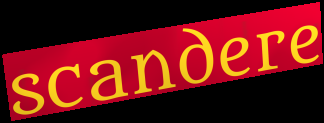
scandere